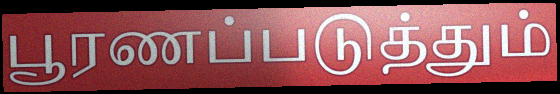
பூரணப்படுத்தும்